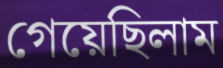
গেয়েছিলাম